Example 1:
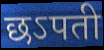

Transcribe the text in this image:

छऽपती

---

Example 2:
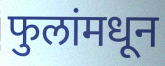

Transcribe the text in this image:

फुलांमधून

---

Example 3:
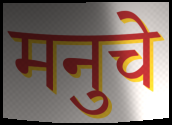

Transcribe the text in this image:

मनुचे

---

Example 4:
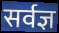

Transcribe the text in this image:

सर्वज्ञ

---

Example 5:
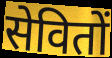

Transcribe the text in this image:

सेवितों